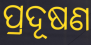
ପ୍ରଦୂଷଣ